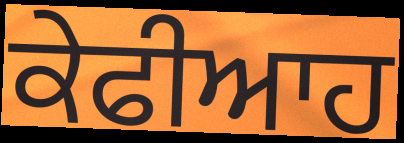
ਕੇਫੀਆਹ